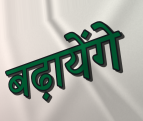
बढ़ायेंगे